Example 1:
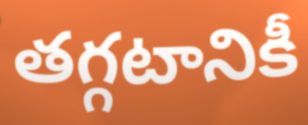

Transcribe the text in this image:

తగ్గటానికీ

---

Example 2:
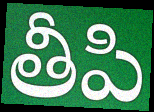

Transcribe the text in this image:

తీపి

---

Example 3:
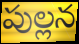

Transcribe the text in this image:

పుల్లన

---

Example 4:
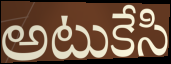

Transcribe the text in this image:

అటుకేసి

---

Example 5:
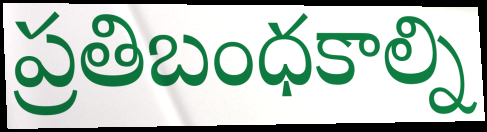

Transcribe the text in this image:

ప్రతిబంధకాల్ని